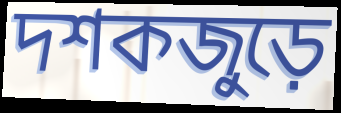
দশকজুড়ে